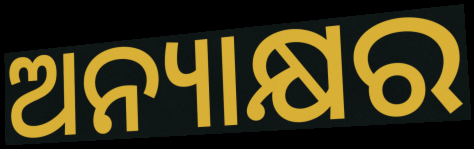
ଅନ୍ୟାକ୍ଷର